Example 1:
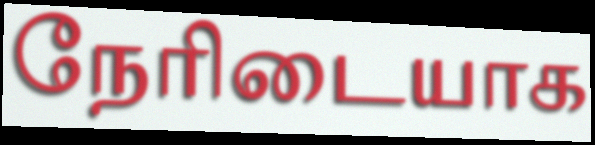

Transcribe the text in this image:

நேரிடையாக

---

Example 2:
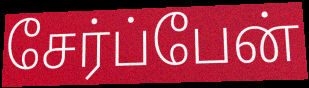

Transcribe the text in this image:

சேர்ப்பேன்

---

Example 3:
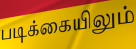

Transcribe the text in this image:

படிக்கையிலும்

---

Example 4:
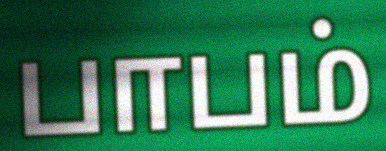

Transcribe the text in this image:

பாபம்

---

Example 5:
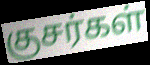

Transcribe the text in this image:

குசர்கள்